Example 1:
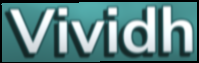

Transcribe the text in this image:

Vividh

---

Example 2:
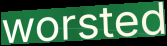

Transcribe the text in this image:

worsted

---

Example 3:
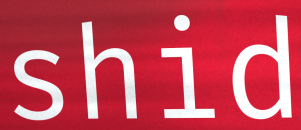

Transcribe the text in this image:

shid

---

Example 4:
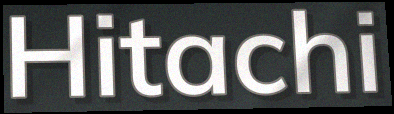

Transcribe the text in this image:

Hitachi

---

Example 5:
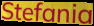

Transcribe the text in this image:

Stefania